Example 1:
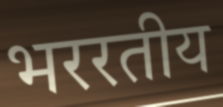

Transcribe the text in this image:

भररतीय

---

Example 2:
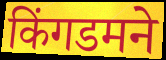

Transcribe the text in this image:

किंगडमने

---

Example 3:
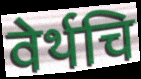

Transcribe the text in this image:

वेर्थचि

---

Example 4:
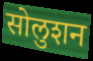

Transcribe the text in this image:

सोलुशन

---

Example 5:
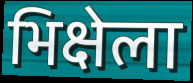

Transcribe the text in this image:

भिक्षेला